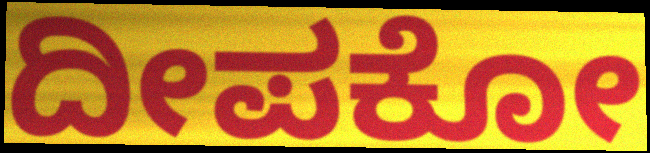
ದೀಪಕೋ